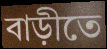
বাড়ীতে